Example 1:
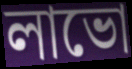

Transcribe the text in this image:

লাভো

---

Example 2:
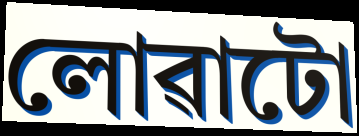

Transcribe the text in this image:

লোৱাটো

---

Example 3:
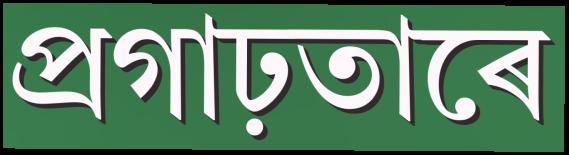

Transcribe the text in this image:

প্ৰগাঢ়তাৰে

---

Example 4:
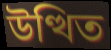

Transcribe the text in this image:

উত্থিত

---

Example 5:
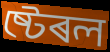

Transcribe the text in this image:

ষ্টেৰল